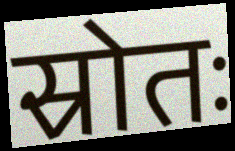
स्रोतः